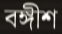
বঙ্গীশ